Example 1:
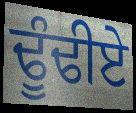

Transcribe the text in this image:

ਢੂੰਢੀਏ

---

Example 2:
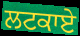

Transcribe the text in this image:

ਲਟਕਾਏ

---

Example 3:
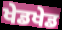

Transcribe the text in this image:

ਖੇਡਖੇਡ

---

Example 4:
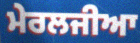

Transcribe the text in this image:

ਮੇਰਲਜੀਆ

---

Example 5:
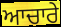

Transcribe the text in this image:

ਆਚਾਰੇ